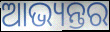
ଆଭ୍ୟନ୍ତର